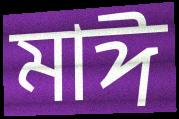
মাঈ